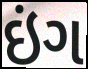
ઇંગ